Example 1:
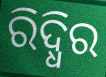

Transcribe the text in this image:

ରିଦ୍ଧିର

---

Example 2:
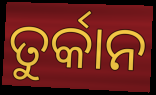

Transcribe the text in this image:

ତୁର୍କାନ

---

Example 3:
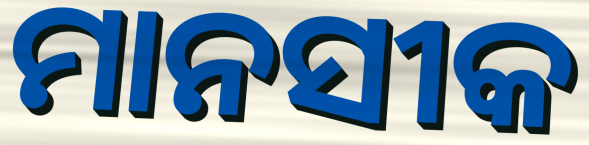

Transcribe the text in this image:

ମାନସୀକ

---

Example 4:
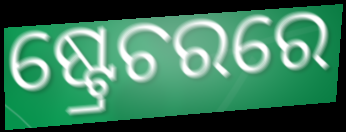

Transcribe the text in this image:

ଷ୍ଟ୍ରେଚରରେ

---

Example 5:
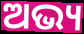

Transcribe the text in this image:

ଅଭ୍ୟ